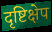
दृष्टिक्षेप